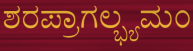
ಶರಪ್ರಾಗಲ್ಭ್ಯಮಂ